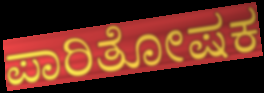
ಪಾರಿತೋಷಕ